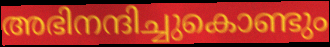
അഭിനന്ദിച്ചുകൊണ്ടും